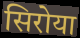
सिरोया